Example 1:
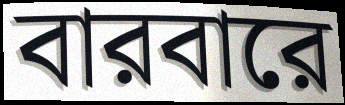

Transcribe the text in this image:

বারবারে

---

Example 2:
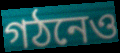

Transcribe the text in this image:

গঠনেও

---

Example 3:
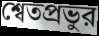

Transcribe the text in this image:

শ্বেতপ্রভুর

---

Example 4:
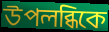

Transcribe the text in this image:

উপলব্ধিকে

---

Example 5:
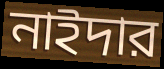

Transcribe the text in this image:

নাইদার